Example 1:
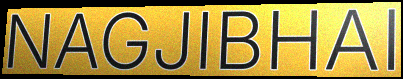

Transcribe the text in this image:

NAGJIBHAI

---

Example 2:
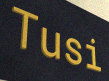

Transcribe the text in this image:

Tusi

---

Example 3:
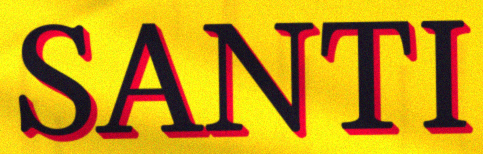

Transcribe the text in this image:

SANTI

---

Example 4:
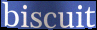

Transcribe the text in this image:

biscuit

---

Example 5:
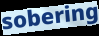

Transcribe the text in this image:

sobering